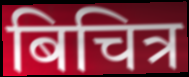
बिचित्र